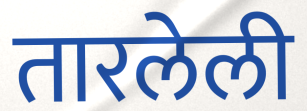
तारलेली